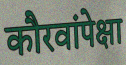
कौरवांपेक्षा